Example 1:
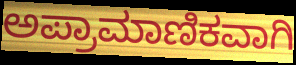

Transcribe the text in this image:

ಅಪ್ರಾಮಾಣಿಕವಾಗಿ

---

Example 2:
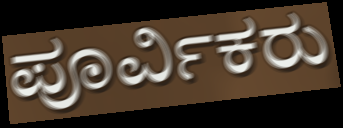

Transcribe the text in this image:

ಪೂರ್ವಿಕರು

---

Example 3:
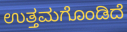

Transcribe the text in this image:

ಉತ್ತಮಗೊಂಡಿದೆ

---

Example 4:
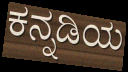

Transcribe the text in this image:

ಕನ್ನಡಿಯ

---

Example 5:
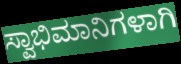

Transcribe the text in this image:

ಸ್ವಾಭಿಮಾನಿಗಳಾಗಿ